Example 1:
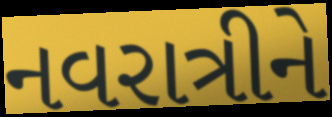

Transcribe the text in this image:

નવરાત્રીને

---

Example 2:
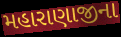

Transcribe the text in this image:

મહારાણાજીના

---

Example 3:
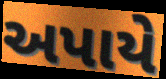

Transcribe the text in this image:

અપાયે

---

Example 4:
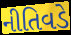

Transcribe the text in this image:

નીતિવડે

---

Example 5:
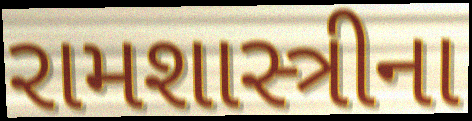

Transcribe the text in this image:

રામશાસ્ત્રીના